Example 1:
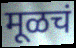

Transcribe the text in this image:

मूळचं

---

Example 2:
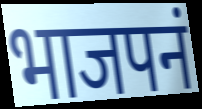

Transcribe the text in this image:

भाजपनं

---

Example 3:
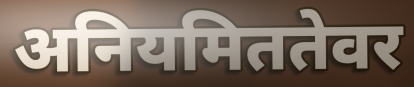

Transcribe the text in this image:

अनियमिततेवर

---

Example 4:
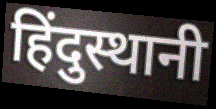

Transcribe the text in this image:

हिंदुस्थानी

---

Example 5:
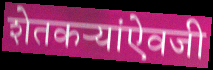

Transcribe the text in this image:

शेतकऱ्यांऐवजी